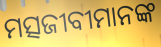
ମତ୍ସଜୀବୀମାନଙ୍କ